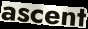
ascent